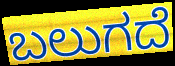
ಬಲುಗದೆ